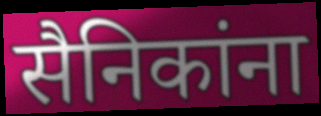
सैनिकांना